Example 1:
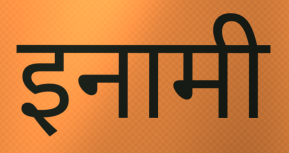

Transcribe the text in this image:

इनामी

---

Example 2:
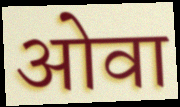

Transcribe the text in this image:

ओवा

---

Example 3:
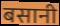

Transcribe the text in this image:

बसानी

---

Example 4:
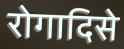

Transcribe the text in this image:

रोगादिसे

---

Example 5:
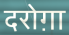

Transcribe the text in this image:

दरोग़ा